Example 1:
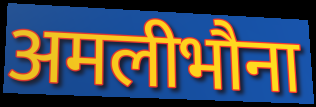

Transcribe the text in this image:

अमलीभौना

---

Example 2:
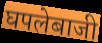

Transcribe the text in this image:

घपलेबाजी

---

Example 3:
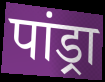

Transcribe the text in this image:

पांड्रा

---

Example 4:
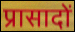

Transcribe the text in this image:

प्रासादों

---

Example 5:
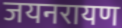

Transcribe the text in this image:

जयनरायण